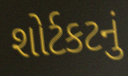
શોર્ટકટનું